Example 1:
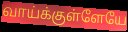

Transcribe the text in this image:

வாய்க்குள்ளேயே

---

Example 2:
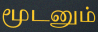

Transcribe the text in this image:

மூடனும்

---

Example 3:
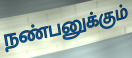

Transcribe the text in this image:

நண்பனுக்கும்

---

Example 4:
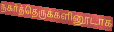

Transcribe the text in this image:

நகர்த்தெருக்களினூடாக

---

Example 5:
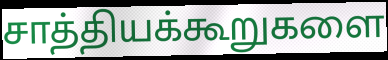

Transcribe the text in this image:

சாத்தியக்கூறுகளை